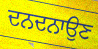
ਦਨਦਨਾਉਣ